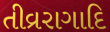
તીવ્રરાગાદિ